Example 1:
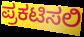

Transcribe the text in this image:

ಪ್ರಕಟಿಸಲಿ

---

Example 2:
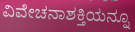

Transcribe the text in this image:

ವಿವೇಚನಾಶಕ್ತಿಯನ್ನೂ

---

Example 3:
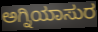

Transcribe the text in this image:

ಅಗ್ನಿಯಾಸುರ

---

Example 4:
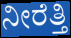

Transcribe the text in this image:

ನೀರೆತ್ತಿ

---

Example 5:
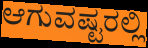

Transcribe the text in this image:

ಆಗುವಷ್ಟರಲ್ಲಿ